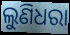
ଲୁଣିଧରା